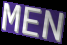
MEN